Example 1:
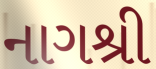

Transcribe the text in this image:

નાગશ્રી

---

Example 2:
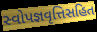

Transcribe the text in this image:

સ્વોપજ્ઞવૃત્તિસહિત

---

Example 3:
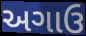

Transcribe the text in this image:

અગાઉ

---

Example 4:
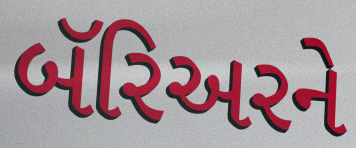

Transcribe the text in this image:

બૅરિઅરને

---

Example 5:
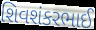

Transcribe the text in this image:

શિવશંકરભાઈ